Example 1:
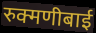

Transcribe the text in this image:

रुक्मणीबाई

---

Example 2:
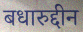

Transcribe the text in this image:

बधारुद्दीन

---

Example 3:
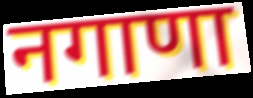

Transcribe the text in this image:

नगाणा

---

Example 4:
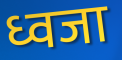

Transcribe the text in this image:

ध्वजा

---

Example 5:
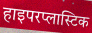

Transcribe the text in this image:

हाइपरप्लास्टिक